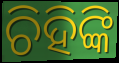
ଚିହିଙ୍କି